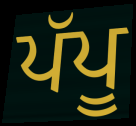
ਪੱਪੂ